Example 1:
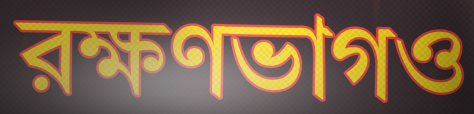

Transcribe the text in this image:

রক্ষণভাগও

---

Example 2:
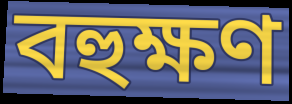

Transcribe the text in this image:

বহুক্ষণ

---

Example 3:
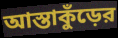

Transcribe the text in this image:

আস্তাকুঁড়ের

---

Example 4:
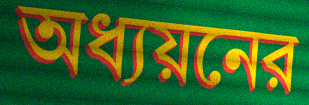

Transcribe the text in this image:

অধ্যয়নের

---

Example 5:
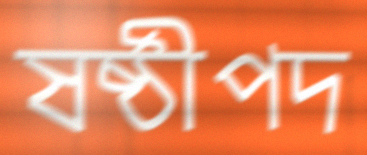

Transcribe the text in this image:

ষষ্ঠীপদ